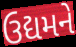
ઉદ્યમને